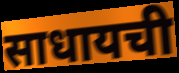
साधायची